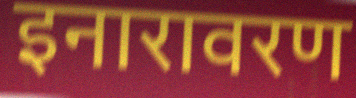
इनारावरण